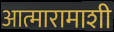
आत्मारामाशी